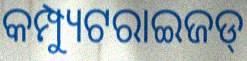
କମ୍ପ୍ୟୁଟରାଇଜଡ୍